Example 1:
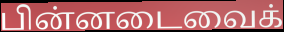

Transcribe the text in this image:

பின்னடைவைக்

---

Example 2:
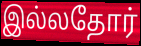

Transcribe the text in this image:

இல்லதோர்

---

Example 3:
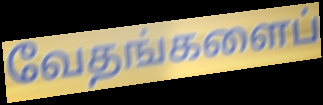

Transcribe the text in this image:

வேதங்களைப்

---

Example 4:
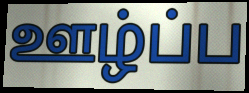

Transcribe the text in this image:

ஊழ்ப்ப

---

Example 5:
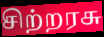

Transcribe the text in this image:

சிற்றரசு